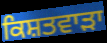
ਕਿਸ਼ਤਵਾੜਾ